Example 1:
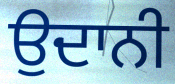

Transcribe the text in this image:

ਉਦਾਨੀ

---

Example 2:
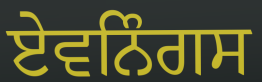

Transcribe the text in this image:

ਏਵਨਿੰਗਸ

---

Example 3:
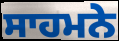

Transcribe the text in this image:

ਸਾਹਮਨੇ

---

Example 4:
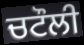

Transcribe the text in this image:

ਚਟੌਲੀ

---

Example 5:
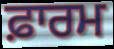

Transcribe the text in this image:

ਫ਼ਾਰਮ